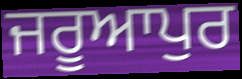
ਜਰੂਆਪੁਰ